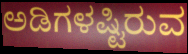
ಅಡಿಗಳಷ್ಟಿರುವ